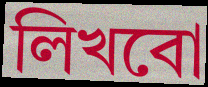
লিখবো